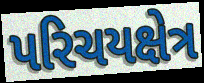
પરિચયક્ષેત્ર